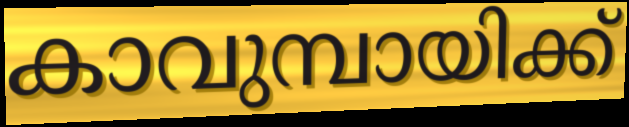
കാവുമ്പായിക്ക്